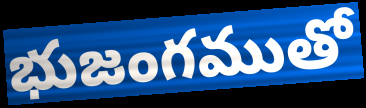
భుజంగముతో